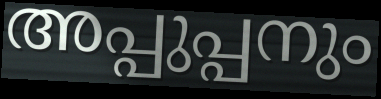
അപ്പുപ്പനും